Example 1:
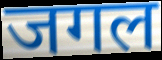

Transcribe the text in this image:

जगल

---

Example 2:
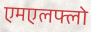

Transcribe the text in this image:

एमएलफ्लो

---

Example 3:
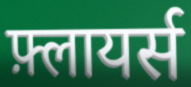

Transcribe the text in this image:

फ़्लायर्स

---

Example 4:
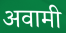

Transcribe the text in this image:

अवामी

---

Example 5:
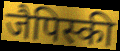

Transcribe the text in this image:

जैपिस्की